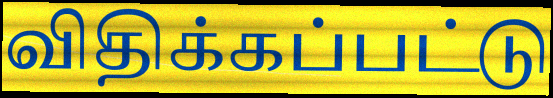
விதிக்கப்பட்டு